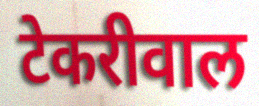
टेकरीवाल